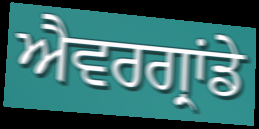
ਐਵਰਗ੍ਰਾਂਡੇ